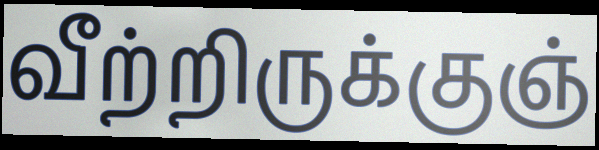
வீற்றிருக்குஞ்